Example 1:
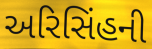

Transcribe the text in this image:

અરિસિંહની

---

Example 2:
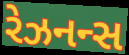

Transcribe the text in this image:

રેઝનન્સ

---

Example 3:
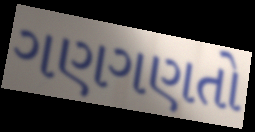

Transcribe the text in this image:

ગણગણતો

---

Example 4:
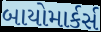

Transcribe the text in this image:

બાયોમાર્કર્સ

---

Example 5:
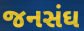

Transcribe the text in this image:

જનસંઘ